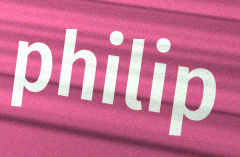
philip